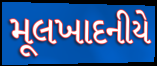
મૂલખાદનીયે